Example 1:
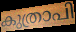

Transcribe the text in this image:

കുത്രാപി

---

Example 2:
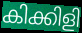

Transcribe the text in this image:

കിക്കിളി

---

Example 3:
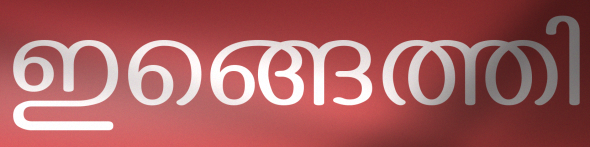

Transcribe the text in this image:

ഇങ്ങെത്തി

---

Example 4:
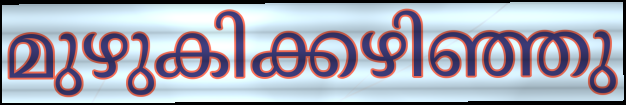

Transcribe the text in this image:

മുഴുകിക്കഴിഞ്ഞു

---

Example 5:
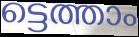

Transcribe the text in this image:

ട്ടെത്താം